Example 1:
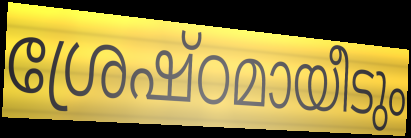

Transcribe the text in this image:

ശ്രേഷ്ഠമായീടും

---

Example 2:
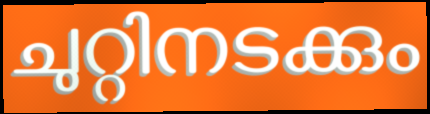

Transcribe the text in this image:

ചുറ്റിനടക്കും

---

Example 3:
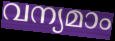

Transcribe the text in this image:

വന്യമാം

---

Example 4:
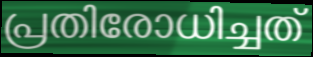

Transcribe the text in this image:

പ്രതിരോധിച്ചത്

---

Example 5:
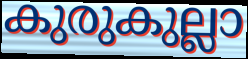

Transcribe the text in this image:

കുരുകുല്ലാ